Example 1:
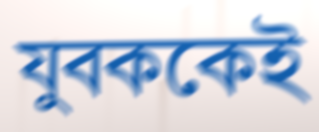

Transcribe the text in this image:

যুবককেই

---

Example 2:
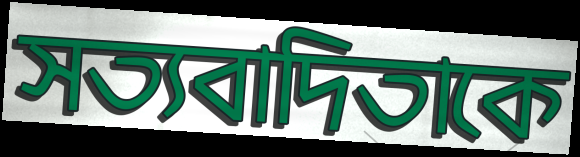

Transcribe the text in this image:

সত্যবাদিতাকে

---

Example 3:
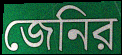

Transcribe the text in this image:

জেনির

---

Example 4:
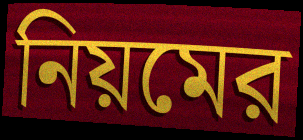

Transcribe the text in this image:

নিয়মের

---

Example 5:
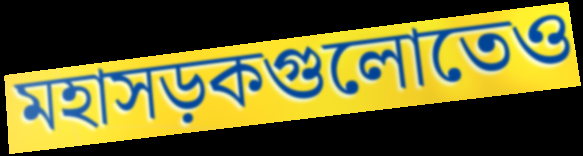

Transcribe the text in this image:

মহাসড়কগুলোতেও